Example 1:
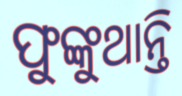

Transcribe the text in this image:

ଫୁଙ୍କୁଥାନ୍ତି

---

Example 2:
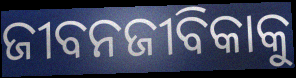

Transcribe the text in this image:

ଜୀବନଜୀବିକାକୁ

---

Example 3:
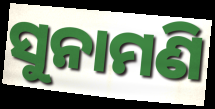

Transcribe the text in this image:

ସୁନାମଣି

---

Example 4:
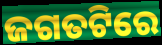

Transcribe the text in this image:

ଜଗତଟିରେ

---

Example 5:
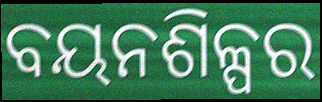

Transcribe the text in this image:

ବୟନଶିଳ୍ପର